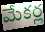
మేకర్ల